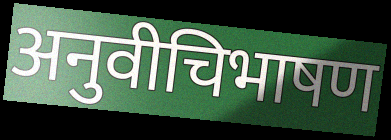
अनुवीचिभाषण